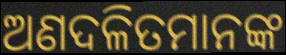
ଅଣଦଳିତମାନଙ୍କ